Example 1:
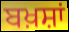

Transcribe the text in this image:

ਬਖ਼ਸ਼ਾਂ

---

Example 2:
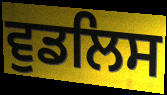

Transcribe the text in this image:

ਵੁਡਲਿਸ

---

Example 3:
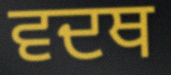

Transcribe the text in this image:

ਵਦਥ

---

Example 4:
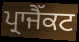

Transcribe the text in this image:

ਪ੍ਰਾਜੈੱਕਟ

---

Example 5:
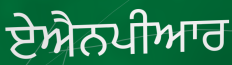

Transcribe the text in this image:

ਏਐਨਪੀਆਰ